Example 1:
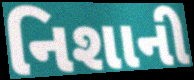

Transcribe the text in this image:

નિશાની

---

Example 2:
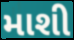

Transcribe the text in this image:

માશી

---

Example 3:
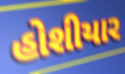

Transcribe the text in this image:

હોશીયાર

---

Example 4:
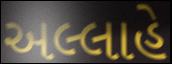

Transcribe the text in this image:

અલ્લાહે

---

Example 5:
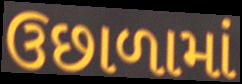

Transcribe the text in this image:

ઉછાળામાં